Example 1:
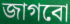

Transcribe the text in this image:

জাগবো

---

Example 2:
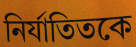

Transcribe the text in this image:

নির্যাতিতকে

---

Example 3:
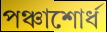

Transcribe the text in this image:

পঞ্চাশোর্ধ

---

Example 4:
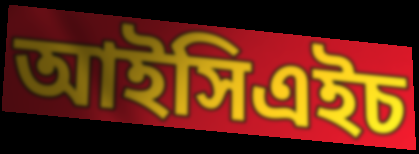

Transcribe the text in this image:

আইসিএইচ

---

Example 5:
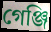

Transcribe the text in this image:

গেঞ্জি